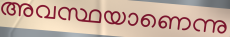
അവസ്ഥയാണെന്നു